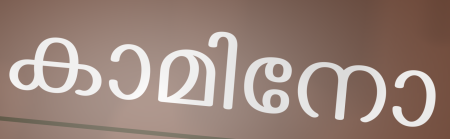
കാമിനോ